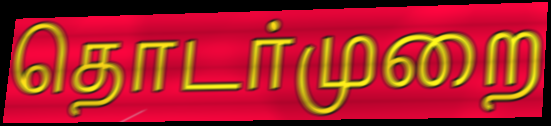
தொடர்முறை